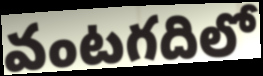
వంటగదిలో